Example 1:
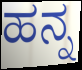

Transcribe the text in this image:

ಹನ್ನ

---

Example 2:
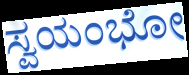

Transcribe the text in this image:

ಸ್ವಯಂಭೋ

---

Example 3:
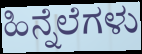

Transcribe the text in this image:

ಹಿನ್ನೆಲೆಗಳು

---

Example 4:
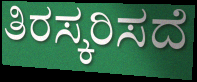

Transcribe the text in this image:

ತಿರಸ್ಕರಿಸದೆ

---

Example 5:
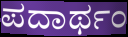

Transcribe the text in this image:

ಪದಾರ್ಥಂ